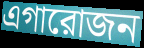
এগারোজন